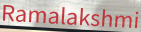
Ramalakshmi